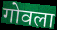
गोवला